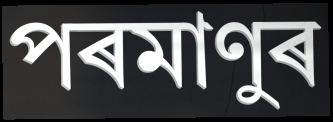
পৰমাণুৰ